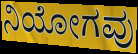
ನಿಯೋಗವು